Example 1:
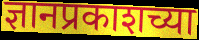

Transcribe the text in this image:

ज्ञानप्रकाशच्या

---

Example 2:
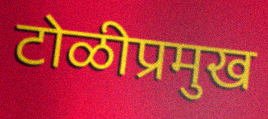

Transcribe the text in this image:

टोळीप्रमुख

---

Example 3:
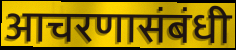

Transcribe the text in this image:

आचरणासंबंधी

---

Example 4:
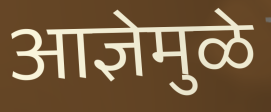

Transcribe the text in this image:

आज्ञेमुळे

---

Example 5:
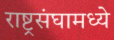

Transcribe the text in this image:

राष्ट्रसंघामध्ये